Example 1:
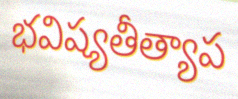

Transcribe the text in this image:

భవిష్యతీత్యాప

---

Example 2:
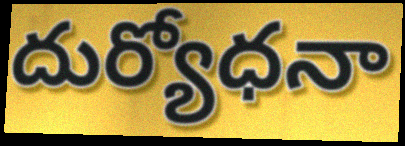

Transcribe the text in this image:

దుర్యోధనా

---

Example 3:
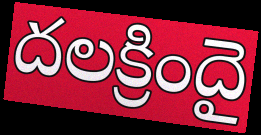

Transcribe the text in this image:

దలక్రిందై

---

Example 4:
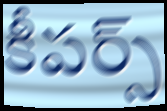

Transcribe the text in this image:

కీపర్స్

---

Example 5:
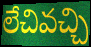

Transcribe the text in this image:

లేచివచ్చి